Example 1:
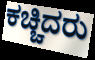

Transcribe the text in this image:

ಕಚ್ಚಿದರು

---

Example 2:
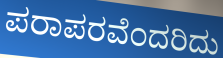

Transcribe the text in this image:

ಪರಾಪರವೆಂದರಿದು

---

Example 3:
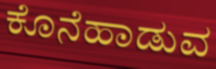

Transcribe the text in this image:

ಕೊನೆಹಾಡುವ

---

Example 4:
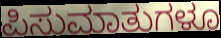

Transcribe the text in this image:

ಪಿಸುಮಾತುಗಳೂ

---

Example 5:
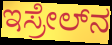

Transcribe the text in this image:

ಇಸ್ರೇಲ್‍ನ